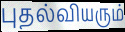
புதல்வியரும்